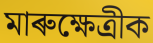
মাৰুক্ষেত্ৰীক